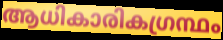
ആധികാരികഗ്രന്ഥം